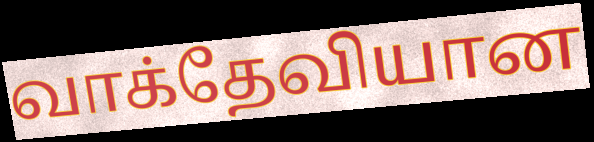
வாக்தேவியான